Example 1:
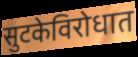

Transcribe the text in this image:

सुटकेविरोधात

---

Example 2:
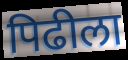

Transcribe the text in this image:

पिढीला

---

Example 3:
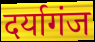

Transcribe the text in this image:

दर्यागंज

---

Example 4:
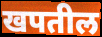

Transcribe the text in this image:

खपतील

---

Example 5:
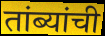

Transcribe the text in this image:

तांब्यांची